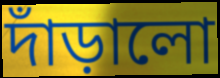
দাঁড়ালো